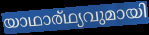
യാഥാര്ഥ്യവുമായി